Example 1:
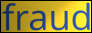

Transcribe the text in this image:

fraud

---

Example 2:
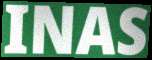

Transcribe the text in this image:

INAS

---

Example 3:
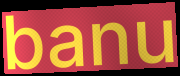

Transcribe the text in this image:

banu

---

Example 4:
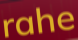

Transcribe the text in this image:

rahe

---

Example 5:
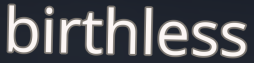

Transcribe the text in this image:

birthless